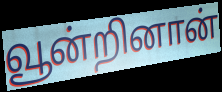
வூன்றினான்